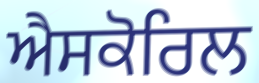
ਐਸਕੋਰਿਲ